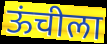
ऊंचीला